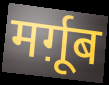
मर्ग़ूब